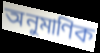
অনুমাণিক